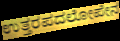
ಉತ್ತರಪದಲೋಪೇನ